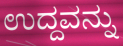
ಉದ್ದವನ್ನು